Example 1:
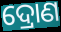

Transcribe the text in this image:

ଦ୍ରୋଣ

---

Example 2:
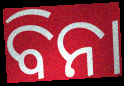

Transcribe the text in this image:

ବିନା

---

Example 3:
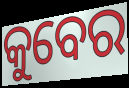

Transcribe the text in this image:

କୁବେର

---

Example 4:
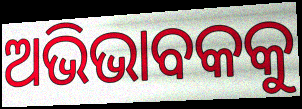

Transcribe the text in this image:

ଅଭିଭାବକକୁ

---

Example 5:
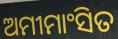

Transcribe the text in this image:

ଅମୀମାଂସିତ